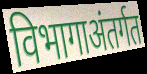
विभागाअंतर्गत